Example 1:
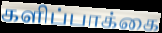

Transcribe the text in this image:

களிப்பாக்கை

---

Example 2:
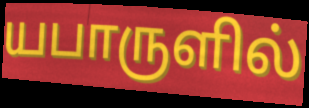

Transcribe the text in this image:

யபாருளில்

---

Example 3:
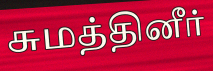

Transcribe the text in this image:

சுமத்தினீர்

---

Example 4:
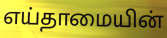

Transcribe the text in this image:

எய்தாமையின்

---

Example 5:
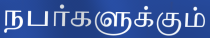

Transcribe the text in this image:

நபர்களுக்கும்